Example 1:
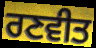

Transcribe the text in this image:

ਰਣਵੀਤ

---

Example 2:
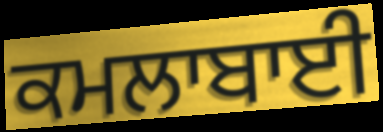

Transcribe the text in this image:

ਕਮਲਾਬਾਈ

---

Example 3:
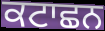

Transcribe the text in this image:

ਕਟਾਛਨ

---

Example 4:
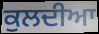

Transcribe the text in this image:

ਕੁਲਦੀਆ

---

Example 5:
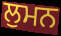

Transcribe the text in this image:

ਲੁਮਨ